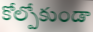
కోల్పోకుండా